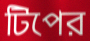
টিপের